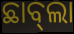
ଛାବ୍‍ଲା